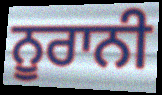
ਨੂਰਾਨੀ